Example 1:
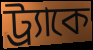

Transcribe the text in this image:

ট্র্যাকে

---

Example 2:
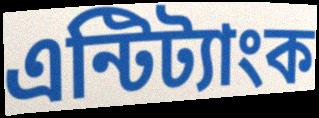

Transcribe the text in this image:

এন্টিট্যাংক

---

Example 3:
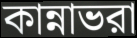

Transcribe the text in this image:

কান্নাভরা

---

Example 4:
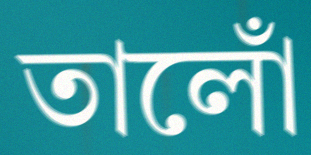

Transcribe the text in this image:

তালোঁ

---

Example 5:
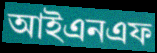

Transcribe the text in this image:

আইএনএফ